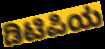
ಡಿಟಿಪಿಯ